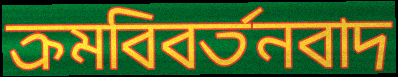
ক্রমবিবর্তনবাদ